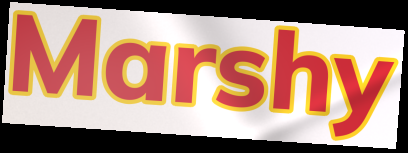
Marshy